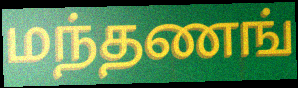
மந்தணங்